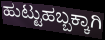
ಹುಟ್ಟುಹಬ್ಬಕ್ಕಾಗಿ